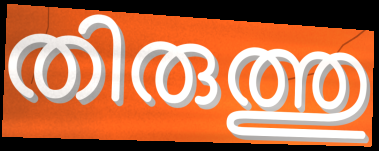
തിരുത്തു